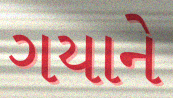
ગયાને